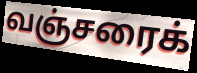
வஞ்சரைக்